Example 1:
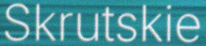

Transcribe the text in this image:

Skrutskie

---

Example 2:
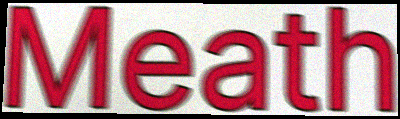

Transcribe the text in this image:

Meath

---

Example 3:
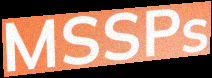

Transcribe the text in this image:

MSSPs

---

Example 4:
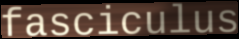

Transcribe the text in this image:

fasciculus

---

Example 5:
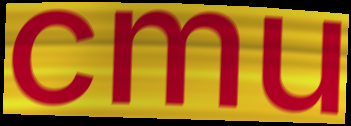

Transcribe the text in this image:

cmu